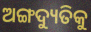
ଅଙ୍ଗଦ୍ୟୁତିକୁ